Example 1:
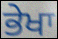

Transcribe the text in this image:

ਭੇਖਾ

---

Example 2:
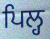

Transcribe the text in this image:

ਪਿਲ੍ਹ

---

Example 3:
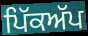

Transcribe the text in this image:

ਪਿੱਕਅੱਪ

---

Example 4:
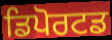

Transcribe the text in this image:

ਡਿਪੋਰਟਡ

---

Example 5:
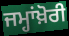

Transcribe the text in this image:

ਜਮ੍ਹਾਂਖ਼ੋਰੀ